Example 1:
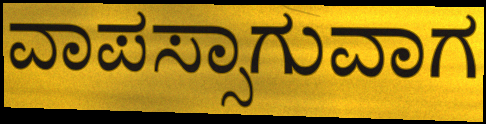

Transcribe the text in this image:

ವಾಪಸ್ಸಾಗುವಾಗ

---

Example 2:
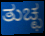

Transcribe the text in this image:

ತುಚ್ಛ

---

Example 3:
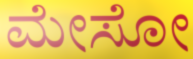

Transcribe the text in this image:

ಮೇಸೋ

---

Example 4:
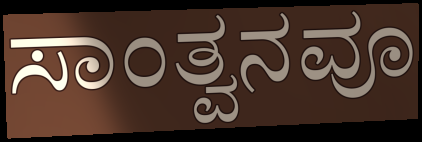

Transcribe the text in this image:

ಸಾಂತ್ವನವೂ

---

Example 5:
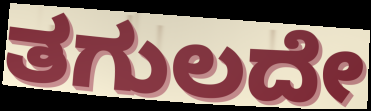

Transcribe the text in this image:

ತಗುಲದೇ